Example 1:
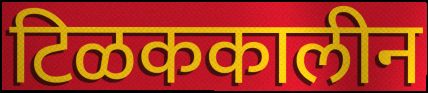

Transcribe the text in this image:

टिळककालीन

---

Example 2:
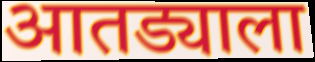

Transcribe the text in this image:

आतड्याला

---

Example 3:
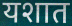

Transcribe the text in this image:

यशात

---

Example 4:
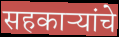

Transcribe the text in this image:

सहकाऱ्यांचे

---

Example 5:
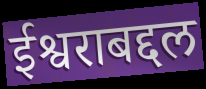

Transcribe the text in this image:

ईश्वराबद्दल